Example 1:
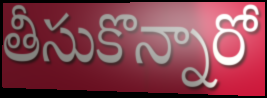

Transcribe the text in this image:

తీసుకొన్నారో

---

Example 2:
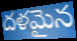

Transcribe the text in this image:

దళమైన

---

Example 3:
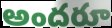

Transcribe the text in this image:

అందరూ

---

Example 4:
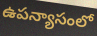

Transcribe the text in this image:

ఉపన్యాసంలో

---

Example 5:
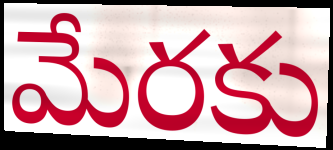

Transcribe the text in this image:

మేరకు